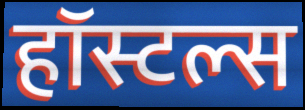
हॉस्टल्स